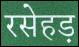
रसेहड़